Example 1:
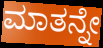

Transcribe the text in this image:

ಮಾತನ್ನೇ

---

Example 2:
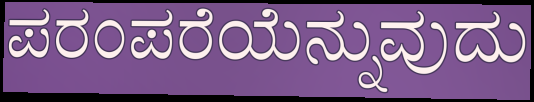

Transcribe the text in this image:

ಪರಂಪರೆಯೆನ್ನುವುದು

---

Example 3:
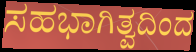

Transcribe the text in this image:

ಸಹಭಾಗಿತ್ವದಿಂದ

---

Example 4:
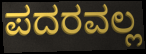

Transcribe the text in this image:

ಪದರವಲ್ಲ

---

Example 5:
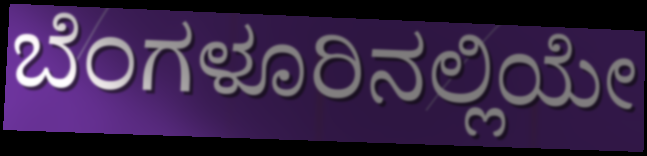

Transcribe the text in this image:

ಬೆಂಗಳೂರಿನಲ್ಲಿಯೇ